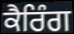
ਕੈਰਿੰਗ